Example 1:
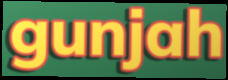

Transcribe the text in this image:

gunjah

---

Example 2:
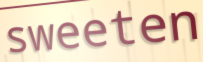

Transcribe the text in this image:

sweeten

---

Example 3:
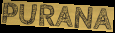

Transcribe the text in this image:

PURANA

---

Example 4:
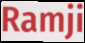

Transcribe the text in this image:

Ramji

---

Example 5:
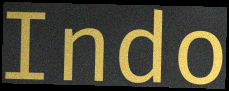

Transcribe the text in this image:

Indo